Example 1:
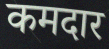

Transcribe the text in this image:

कमदार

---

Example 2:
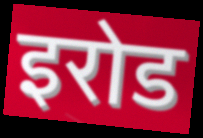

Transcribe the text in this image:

इरोड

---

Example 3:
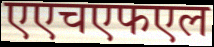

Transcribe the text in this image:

एएचएफएल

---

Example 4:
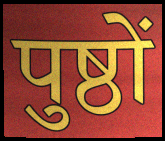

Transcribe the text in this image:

पुष्ठों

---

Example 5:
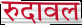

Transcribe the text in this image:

रुदावल